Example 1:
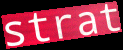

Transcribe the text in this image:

strat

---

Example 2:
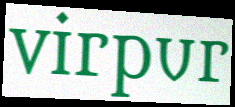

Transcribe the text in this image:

virpur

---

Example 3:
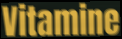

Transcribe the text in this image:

Vitamine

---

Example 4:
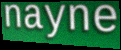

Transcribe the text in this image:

nayne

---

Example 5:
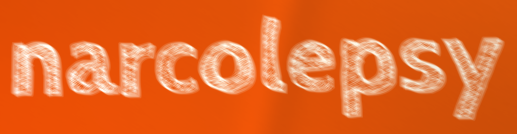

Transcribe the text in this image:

narcolepsy